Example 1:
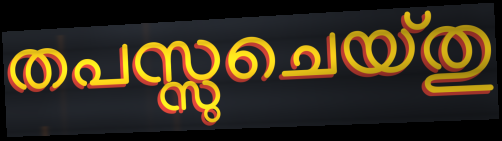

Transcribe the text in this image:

തപസ്സുചെയ്തു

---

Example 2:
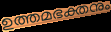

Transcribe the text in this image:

ഉത്തമഭക്തനും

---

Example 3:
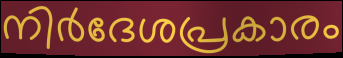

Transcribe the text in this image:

നിർദേശപ്രകാരം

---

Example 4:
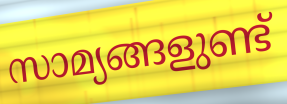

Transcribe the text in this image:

സാമ്യങ്ങളുണ്ട്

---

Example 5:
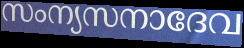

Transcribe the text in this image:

സംന്യസനാദേവ